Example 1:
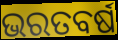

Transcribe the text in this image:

ଭରତବର୍ଷ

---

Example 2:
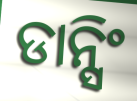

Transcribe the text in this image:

ଡାନ୍ସିଂ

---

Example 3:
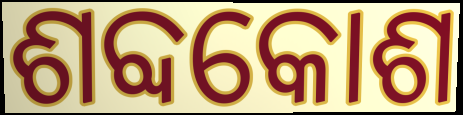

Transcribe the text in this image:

ଶବ୍ଦକୋଶ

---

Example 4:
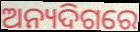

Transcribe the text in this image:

ଅନ୍ୟଦିଗରେ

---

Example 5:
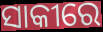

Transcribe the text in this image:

ସାକୀରେ